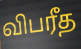
விபரீத